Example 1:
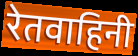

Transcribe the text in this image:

रेतवाहिनी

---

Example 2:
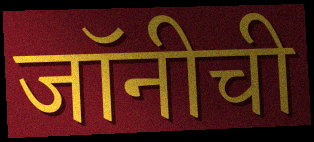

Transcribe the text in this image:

जॉनीची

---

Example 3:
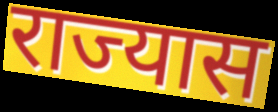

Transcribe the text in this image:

राज्यास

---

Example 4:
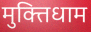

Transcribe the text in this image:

मुक्तिधाम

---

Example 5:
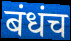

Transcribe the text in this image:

बंधंच